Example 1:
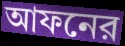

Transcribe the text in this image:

আফনের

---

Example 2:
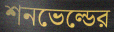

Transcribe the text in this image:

শনভেল্ডের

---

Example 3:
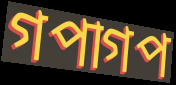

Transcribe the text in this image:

গপাগপ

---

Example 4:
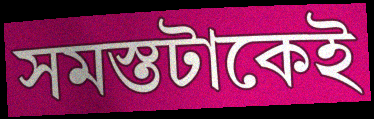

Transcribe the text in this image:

সমস্তটাকেই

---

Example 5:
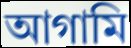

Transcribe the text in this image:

আগামি